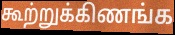
கூற்றுக்கிணங்க